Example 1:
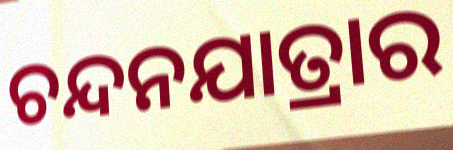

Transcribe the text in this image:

ଚନ୍ଦନଯାତ୍ରାର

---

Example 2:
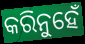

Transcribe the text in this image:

କରିନୁହେଁ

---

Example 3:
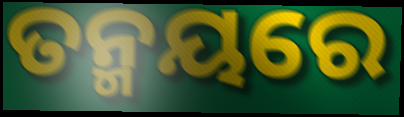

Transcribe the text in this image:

ତନ୍ମୟରେ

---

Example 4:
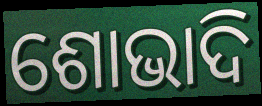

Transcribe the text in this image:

ଶୋଭାଦି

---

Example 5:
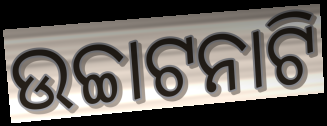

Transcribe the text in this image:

ଉଚ୍ଚାଟନାଟି